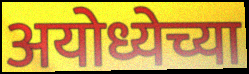
अयोध्येच्या